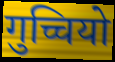
गुच्चियो